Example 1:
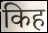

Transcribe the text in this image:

किह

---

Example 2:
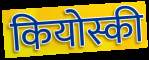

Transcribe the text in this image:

कियोस्की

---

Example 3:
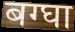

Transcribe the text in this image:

बग्घा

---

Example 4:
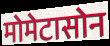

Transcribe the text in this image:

मोमेटासोन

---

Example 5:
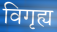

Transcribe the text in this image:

विगृह्य